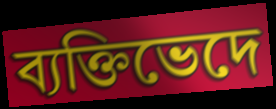
ব্যক্তিভেদে